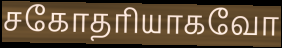
சகோதரியாகவோ